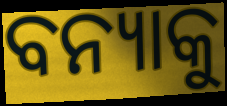
ବନ୍ୟାକୁ